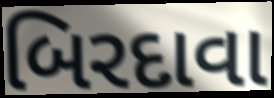
બિરદાવા